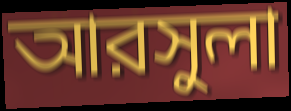
আরসুলা